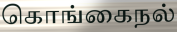
கொங்கைநல்